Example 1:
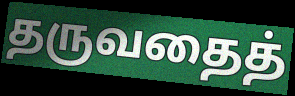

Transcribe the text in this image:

தருவதைத்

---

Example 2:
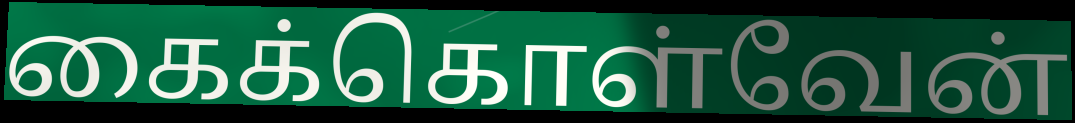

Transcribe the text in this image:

கைக்கொள்வேன்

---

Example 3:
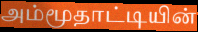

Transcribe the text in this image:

அம்மூதாட்டியின்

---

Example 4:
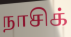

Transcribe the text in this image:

நாசிக்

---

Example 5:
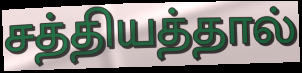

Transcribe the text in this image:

சத்தியத்தால்